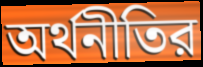
অর্থনীতির